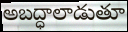
అబద్ధాలాడుతూ